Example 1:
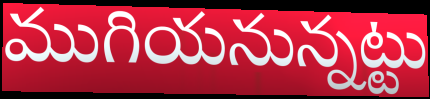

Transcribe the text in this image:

ముగియనున్నట్టు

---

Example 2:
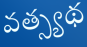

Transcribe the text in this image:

వత్స్యథ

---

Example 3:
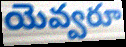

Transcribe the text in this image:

యెవ్వరూ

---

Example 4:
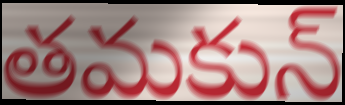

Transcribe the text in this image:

తమకున్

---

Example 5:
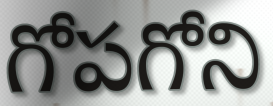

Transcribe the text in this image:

గోపగోని